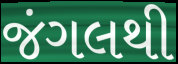
જંગલથી